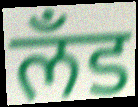
लँड